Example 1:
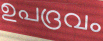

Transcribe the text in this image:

ഉപദ്രവം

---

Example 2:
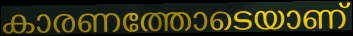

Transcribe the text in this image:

കാരണത്തോടെയാണ്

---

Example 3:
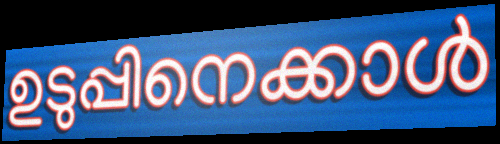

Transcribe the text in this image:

ഉടുപ്പിനെക്കാൾ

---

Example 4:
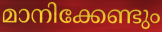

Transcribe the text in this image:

മാനിക്കേണ്ടും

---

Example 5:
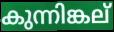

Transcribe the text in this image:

കുന്നിങ്കല്